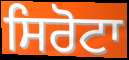
ਸਿਰੋਟਾ